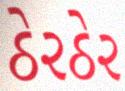
ઠેરઠેર